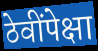
ठेवींपेक्षा